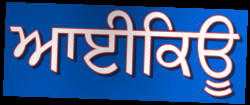
ਆਈਕਿਊ